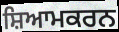
ਸ਼ਿਆਮਕਰਨ